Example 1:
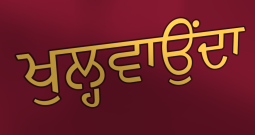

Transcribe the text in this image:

ਖੁਲ੍ਹਵਾਉਂਦਾ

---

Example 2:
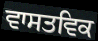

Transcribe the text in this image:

ਵਾਸਤਵਿਕ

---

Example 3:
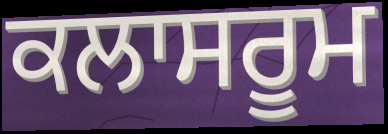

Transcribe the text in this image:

ਕਲਾਸਰੂਮ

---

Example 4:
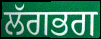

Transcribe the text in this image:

ਲੱਗਭਗ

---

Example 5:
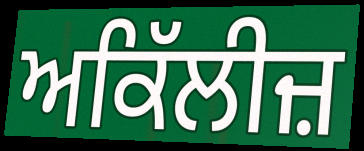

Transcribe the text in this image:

ਅਕਿੱਲੀਜ਼